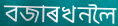
বজাৰখনলৈ